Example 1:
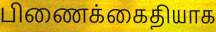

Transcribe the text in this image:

பிணைக்கைதியாக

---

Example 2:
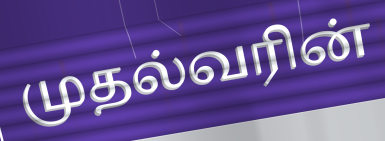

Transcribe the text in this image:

முதல்வரின்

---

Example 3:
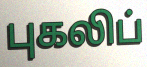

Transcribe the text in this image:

புகலிப்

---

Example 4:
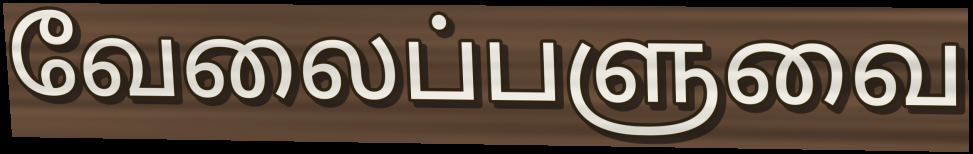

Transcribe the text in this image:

வேலைப்பளுவை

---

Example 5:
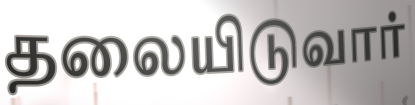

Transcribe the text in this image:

தலையிடுவார்